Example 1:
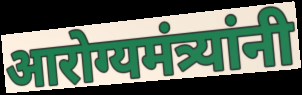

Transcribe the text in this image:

आरोग्यमंत्र्यांनी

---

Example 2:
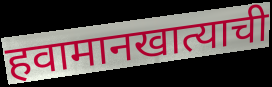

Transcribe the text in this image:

हवामानखात्याची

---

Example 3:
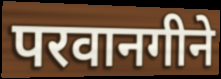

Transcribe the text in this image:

परवानगीने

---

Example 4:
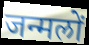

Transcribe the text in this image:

जन्मलों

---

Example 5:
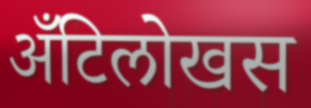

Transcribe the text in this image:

अँटिलोखस